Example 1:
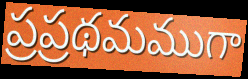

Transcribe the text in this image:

ప్రప్రథమముగా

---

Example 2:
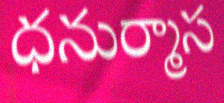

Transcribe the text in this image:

ధనుర్మాస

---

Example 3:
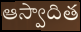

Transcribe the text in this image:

ఆస్వాదిత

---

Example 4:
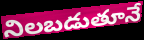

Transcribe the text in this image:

నిలబడుతూనే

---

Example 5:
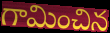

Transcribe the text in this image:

గామించిన